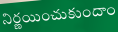
నిర్ణయించుకుందాం